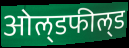
ओल्डफील्ड